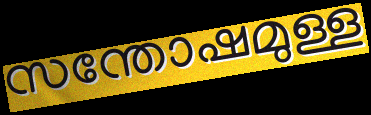
സന്തോഷമുള്ള